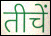
तीचें